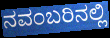
ನವಂಬರಿನಲ್ಲಿ